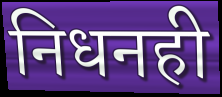
निधनही